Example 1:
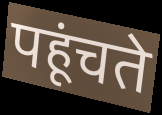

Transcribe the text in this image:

पहूंचते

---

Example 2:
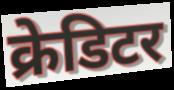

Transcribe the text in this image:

क्रेडिटर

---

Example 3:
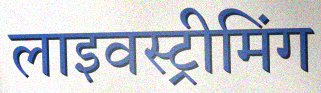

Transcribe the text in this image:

लाइवस्ट्रीमिंग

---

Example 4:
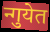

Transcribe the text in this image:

न्गुयेत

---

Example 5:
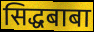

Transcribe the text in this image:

सिद्धबाबा